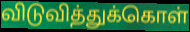
விடுவித்துக்கொள்